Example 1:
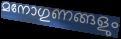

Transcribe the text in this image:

മനോഗുണങ്ങളും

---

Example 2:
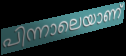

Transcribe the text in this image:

പിന്നാലെയാണ്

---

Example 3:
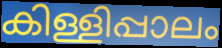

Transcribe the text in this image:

കിള്ളിപ്പാലം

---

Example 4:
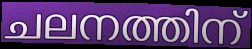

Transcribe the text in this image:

ചലനത്തിന്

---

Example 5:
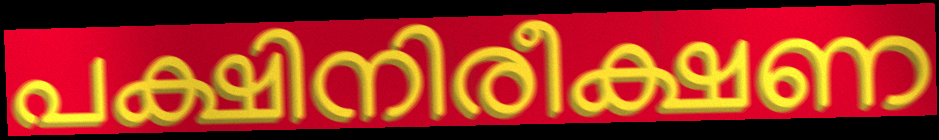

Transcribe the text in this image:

പക്ഷിനിരീക്ഷണ